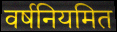
वर्षनियमित